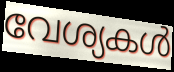
വേശ്യകൾ